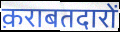
क़राबतदारों